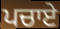
ਪਚਾਏ